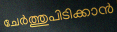
ചേർത്തുപിടിക്കാൻ